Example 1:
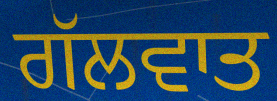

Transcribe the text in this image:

ਗੱਲਵਾਤ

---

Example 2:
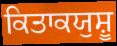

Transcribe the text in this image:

ਕਿਤਾਕਯੁਸ਼ੂ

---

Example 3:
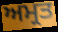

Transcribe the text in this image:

ਅਮ੍ਰਤ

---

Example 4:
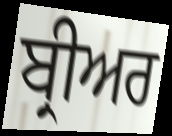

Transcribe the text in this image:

ਬ੍ਰੀਅਰ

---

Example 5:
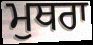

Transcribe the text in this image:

ਮੁਥਰਾ